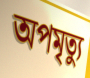
অপমৃত্যু